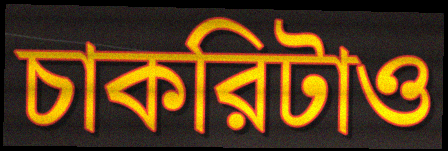
চাকরিটাও